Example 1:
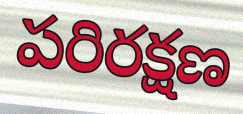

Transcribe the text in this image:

పరిరక్షణ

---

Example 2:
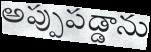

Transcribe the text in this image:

అప్పుపడ్డాను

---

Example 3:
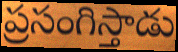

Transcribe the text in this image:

ప్రసంగిస్తాడు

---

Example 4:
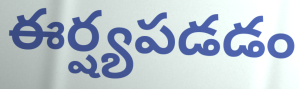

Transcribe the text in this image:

ఈర్ష్యపడడం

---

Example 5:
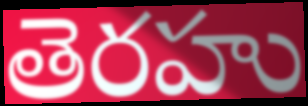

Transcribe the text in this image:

తెరహు